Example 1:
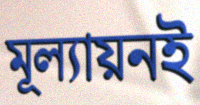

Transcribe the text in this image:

মূল্যায়নই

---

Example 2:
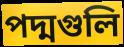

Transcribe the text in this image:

পদ্মগুলি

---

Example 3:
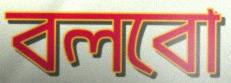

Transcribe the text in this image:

বলবো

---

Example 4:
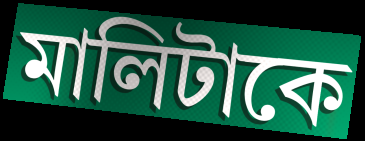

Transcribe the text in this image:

মালিটাকে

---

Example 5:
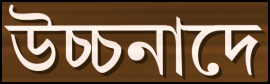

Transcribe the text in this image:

উচ্চনাদে